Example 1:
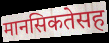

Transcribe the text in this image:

मानसिकतेसह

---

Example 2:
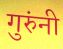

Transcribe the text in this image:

गुरुंनी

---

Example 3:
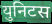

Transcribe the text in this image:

युनिटस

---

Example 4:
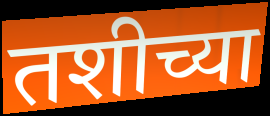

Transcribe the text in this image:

तशीच्या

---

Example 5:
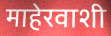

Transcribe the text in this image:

माहेरवाशी